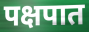
पक्षपात